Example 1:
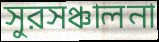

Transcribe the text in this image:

সুরসঞ্চালনা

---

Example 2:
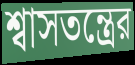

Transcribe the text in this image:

শ্বাসতন্ত্রের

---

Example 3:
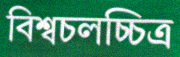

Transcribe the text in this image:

বিশ্বচলচ্চিত্র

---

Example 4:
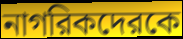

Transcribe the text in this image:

নাগরিকদেরকে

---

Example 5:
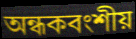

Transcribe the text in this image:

অন্ধকবংশীয়